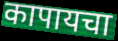
कापायचा